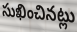
సుఖించినట్లు